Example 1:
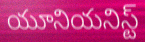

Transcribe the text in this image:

యూనియనిస్ట్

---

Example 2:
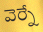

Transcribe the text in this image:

వెర్నే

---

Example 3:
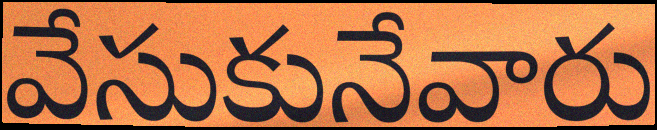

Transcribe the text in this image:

వేసుకునేవారు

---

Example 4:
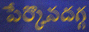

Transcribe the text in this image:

పేర్కొనదగ్గ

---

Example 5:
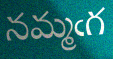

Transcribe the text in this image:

నమ్మఁగ